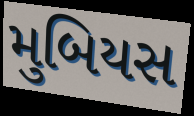
મુબિયસ